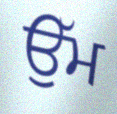
ਉੱਮ